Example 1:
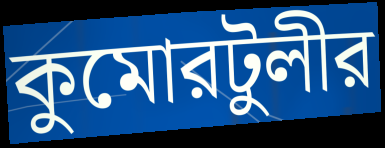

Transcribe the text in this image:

কুমোরটুলীর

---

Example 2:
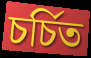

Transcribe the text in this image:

চর্চিত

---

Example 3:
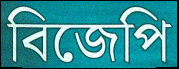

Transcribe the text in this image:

বিজেপি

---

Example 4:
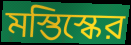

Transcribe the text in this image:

মস্তিস্কের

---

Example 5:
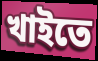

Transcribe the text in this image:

খাইতে